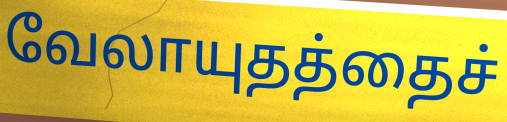
வேலாயுதத்தைச்